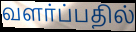
வளர்ப்பதில்